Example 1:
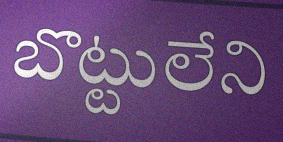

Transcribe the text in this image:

బొట్టులేని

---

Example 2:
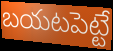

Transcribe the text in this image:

బయటపెట్టే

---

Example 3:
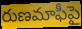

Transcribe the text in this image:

రుణమాఫీపై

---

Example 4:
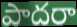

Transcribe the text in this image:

పాదరా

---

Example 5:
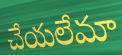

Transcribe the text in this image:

చేయలేమా